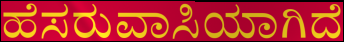
ಹೆಸರುವಾಸಿಯಾಗಿದೆ